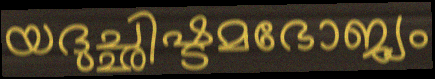
യദുച്ഛിഷ്ടമഭോജ്യം